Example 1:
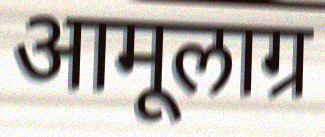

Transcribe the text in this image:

आमूलाग्र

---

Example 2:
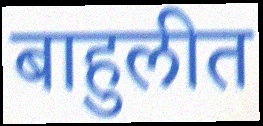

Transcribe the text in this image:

बाहुलीत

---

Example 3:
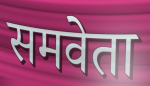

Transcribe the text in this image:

समवेता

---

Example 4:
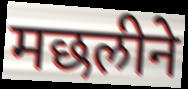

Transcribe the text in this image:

मछलीने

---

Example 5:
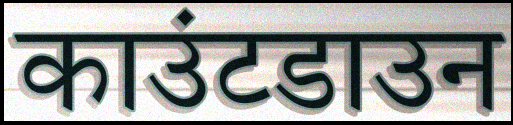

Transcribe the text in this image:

काउंटडाउन